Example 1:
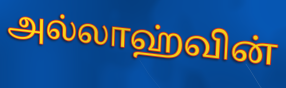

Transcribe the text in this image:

அல்லாஹ்வின்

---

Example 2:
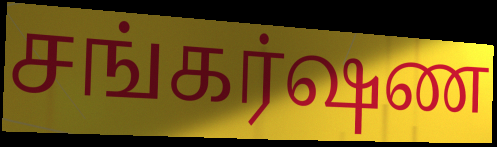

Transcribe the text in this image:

சங்கர்ஷண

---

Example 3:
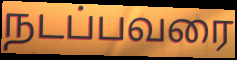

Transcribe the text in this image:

நடப்பவரை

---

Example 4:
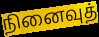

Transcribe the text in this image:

நினைவுத்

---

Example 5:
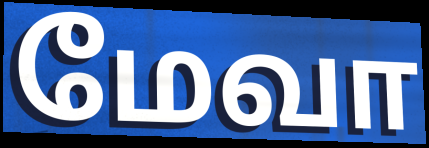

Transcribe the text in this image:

மேவா